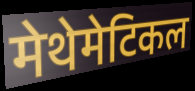
मेथेमेटिकल